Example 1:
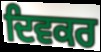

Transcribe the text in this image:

ਦਿਵਕਰ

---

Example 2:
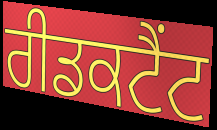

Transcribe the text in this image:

ਰੀਡਕਟੈਂਟ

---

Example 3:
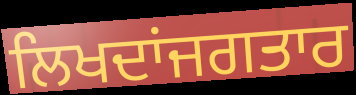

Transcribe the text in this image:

ਲਿਖਦਾਂਜਗਤਾਰ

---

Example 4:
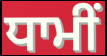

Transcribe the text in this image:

ਧਾਮੀਂ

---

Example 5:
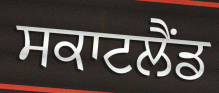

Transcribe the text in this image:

ਸਕਾਟਲੈਂਡ